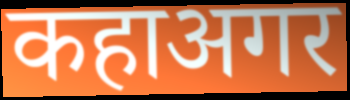
कहाअगर